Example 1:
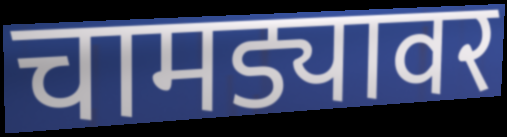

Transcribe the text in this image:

चामड्यावर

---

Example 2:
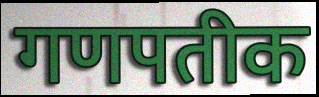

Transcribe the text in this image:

गणपतीक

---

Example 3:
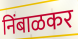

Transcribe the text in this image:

निंबाळकर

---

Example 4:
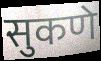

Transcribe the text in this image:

सुकणे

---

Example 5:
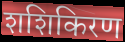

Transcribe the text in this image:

शशिकिरण